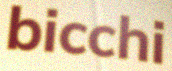
bicchi